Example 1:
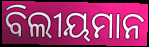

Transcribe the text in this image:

ବିଲୀୟମାନ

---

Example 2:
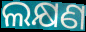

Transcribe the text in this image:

ଲକ୍ଷଣ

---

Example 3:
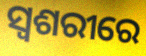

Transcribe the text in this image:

ସ୍ୱଶରୀରେ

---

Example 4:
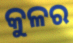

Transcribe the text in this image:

କୁଳର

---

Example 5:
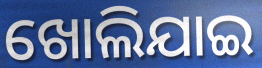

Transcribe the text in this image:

ଖୋଲିଯାଇ